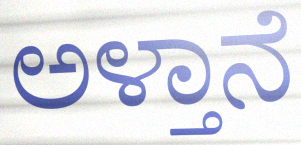
ಅಳ್ತಾನೆ